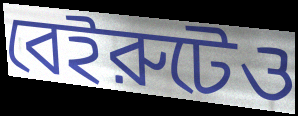
বেইৰুটেও